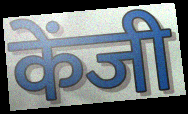
केंजी